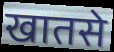
खातसे